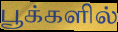
பூக்களில்